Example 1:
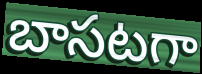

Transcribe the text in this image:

బాసటగా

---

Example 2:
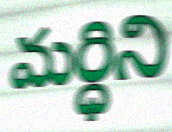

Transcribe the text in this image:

మర్ధిని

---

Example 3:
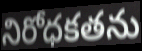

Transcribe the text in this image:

నిరోధకతను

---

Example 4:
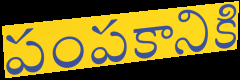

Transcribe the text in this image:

పంపకానికి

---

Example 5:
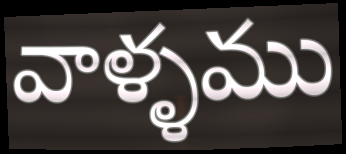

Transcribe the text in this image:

వాళ్ళము